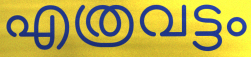
എത്രവട്ടം